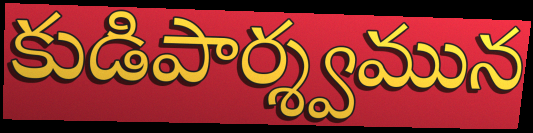
కుడిపార్శ్వమున